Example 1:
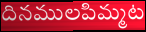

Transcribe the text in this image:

దినములపిమ్మట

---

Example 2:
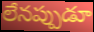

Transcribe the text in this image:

లేనప్పుడూ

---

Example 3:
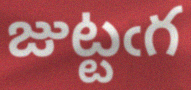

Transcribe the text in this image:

జుట్టఁగ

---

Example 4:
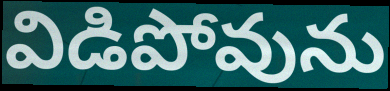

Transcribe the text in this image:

విడిపోవును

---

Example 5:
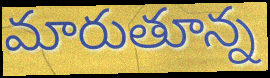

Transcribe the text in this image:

మారుతూన్న